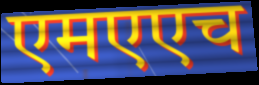
एमएएच